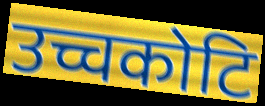
उच्चकोटि